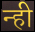
न्ही